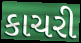
કાચરી